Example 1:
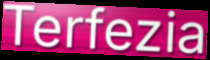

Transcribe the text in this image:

Terfezia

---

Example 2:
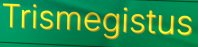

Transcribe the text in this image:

Trismegistus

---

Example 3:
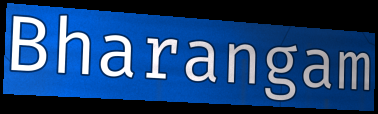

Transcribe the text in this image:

Bharangam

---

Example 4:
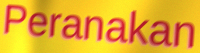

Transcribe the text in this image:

Peranakan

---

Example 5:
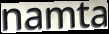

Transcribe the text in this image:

namta